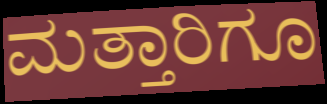
ಮತ್ತಾರಿಗೂ